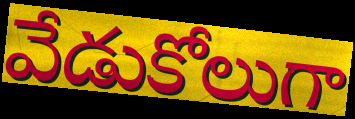
వేడుకోలుగా